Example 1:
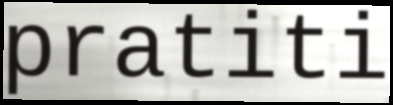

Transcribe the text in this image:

pratiti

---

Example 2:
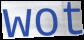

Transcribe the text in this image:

wot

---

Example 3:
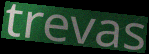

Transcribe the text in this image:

trevas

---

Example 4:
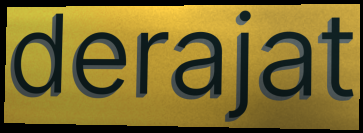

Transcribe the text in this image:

derajat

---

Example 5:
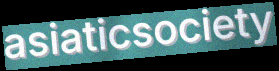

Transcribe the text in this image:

asiaticsociety